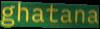
ghatana